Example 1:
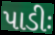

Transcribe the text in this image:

પાડીઃ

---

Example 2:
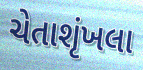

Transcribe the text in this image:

ચેતાશૃંખલા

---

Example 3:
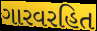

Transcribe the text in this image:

ગારવરહિત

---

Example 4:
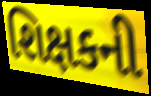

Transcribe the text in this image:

શિક્ષકની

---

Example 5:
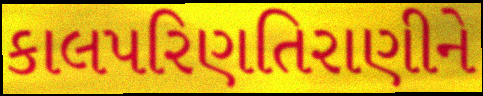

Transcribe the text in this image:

કાલપરિણતિરાણીને